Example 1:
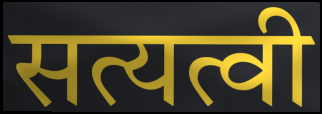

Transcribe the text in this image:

सत्यत्वी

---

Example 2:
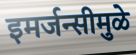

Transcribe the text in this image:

इमर्जन्सीमुळे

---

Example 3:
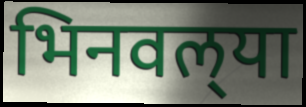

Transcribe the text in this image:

भिनवल्या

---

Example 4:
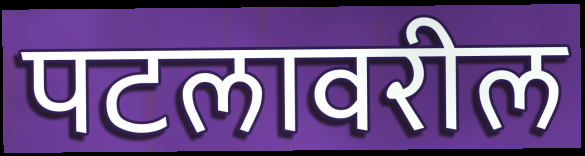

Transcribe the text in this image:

पटलावरील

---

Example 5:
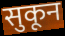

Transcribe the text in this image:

सुकून